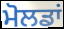
ਮੋਲਡਾਂ